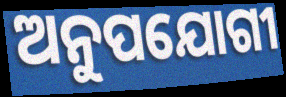
ଅନୁପଯୋଗୀ